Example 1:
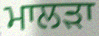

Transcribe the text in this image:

ਮਾਲੜਾ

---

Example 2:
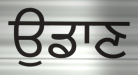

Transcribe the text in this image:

ਉਡਾਣ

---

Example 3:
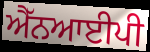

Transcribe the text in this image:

ਐੱਨਆਈਪੀ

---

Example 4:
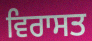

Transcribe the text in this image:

ਵਿਰਾਸਤ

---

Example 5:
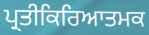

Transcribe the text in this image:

ਪ੍ਰਤੀਕਿਰਿਆਤਮਕ